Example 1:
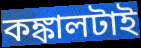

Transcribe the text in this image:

কঙ্কালটাই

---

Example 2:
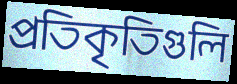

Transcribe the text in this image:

প্রতিকৃতিগুলি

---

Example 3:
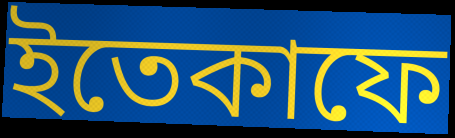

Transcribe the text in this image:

ইতেকাফে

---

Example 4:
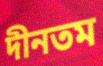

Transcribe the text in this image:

দীনতম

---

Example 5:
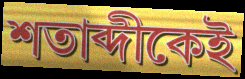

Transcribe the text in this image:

শতাব্দীকেই